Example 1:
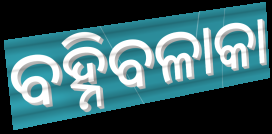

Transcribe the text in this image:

ବହ୍ନିବଳାକା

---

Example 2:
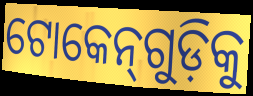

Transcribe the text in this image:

ଟୋକେନ୍‌ଗୁଡ଼ିକୁ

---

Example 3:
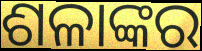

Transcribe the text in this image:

ଶଳାଙ୍କର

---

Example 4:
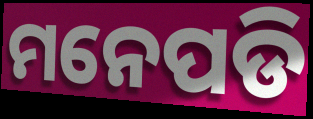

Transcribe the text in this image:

ମନେପଡି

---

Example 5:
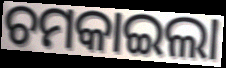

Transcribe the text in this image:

ଚମକାଇଲା